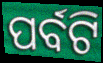
ପର୍ବଟି